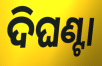
ଦିଘଣ୍ଟା